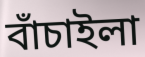
বাঁচাইলা